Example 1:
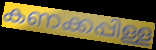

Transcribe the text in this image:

കണക്കപ്പിള്ള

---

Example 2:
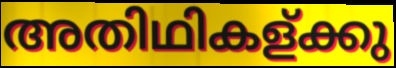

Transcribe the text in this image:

അതിഥികള്ക്കു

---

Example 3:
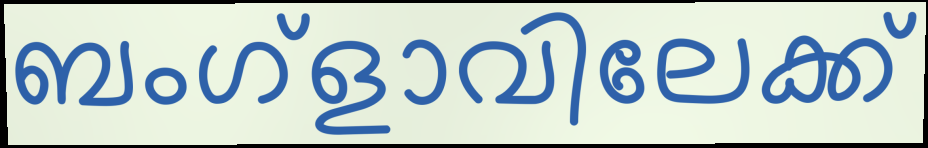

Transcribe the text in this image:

ബംഗ്ളാവിലേക്ക്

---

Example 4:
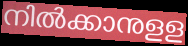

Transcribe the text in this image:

നിൽക്കാനുളള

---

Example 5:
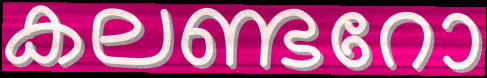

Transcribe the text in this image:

കലണ്ടറോ